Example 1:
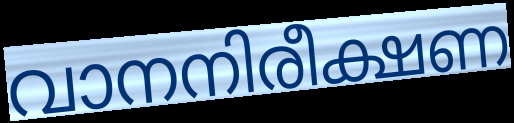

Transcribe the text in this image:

വാനനിരീക്ഷണ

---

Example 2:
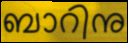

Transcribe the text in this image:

ബാറിനു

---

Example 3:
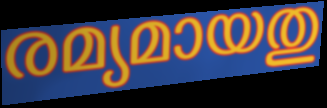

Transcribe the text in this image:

രമ്യമായതു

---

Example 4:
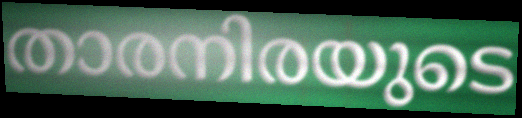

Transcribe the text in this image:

താരനിരയുടെ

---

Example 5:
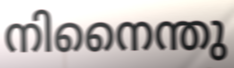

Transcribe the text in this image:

നിനൈന്തു